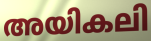
അയികലി